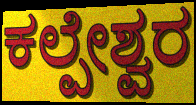
ಕಲ್ಪೇಶ್ವರ